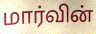
மார்வின்